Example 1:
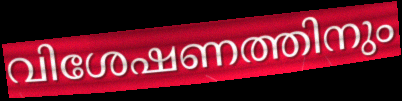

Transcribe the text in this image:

വിശേഷണത്തിനും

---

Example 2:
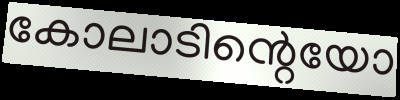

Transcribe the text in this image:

കോലാടിന്റെയോ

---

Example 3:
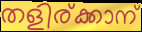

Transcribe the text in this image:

തളിര്ക്കാന്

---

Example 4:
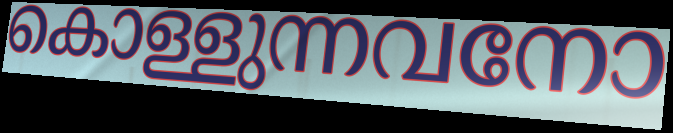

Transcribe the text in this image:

കൊള്ളുന്നവനോ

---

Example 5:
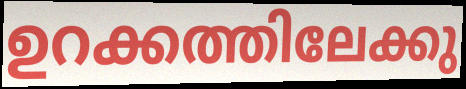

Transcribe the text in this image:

ഉറക്കത്തിലേക്കു